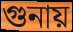
গুনায়